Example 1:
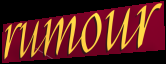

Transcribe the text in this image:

rumour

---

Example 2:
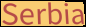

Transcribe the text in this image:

Serbia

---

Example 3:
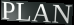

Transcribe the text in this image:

PLAN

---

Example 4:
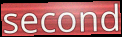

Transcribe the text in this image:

second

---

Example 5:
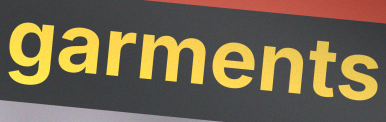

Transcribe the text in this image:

garments